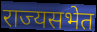
राज्यसभेत